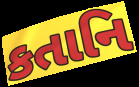
કતાનિ